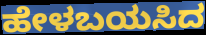
ಹೇಳಬಯಸಿದ